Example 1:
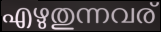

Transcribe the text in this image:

എഴുതുന്നവര്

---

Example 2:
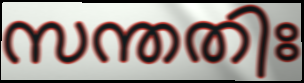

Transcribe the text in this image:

സന്തതിഃ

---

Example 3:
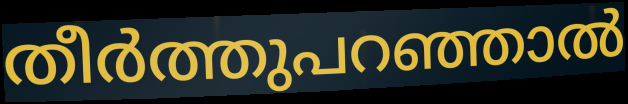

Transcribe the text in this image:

തീർത്തുപറഞ്ഞാൽ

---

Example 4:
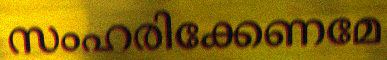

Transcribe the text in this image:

സംഹരിക്കേണമേ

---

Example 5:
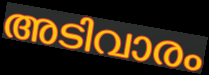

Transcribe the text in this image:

അടിവാരം